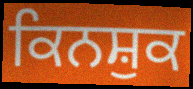
ਕਿਨਸ਼ੁਕ